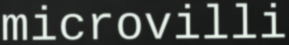
microvilli